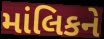
માંલિકને